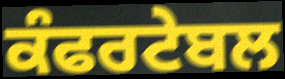
ਕੰਫਰਟੇਬਲ